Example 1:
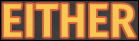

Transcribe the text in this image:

EITHER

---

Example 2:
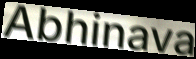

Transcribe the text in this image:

Abhinava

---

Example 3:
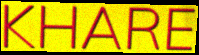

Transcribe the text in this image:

KHARE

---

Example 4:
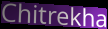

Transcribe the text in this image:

Chitrekha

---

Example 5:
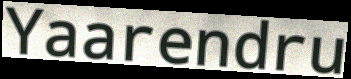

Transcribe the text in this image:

Yaarendru